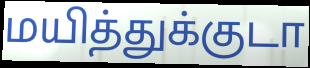
மயித்துக்குடா